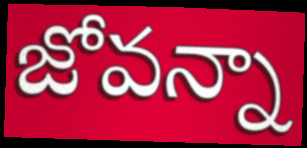
జోవన్నా